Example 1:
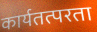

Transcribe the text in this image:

कार्यतत्परता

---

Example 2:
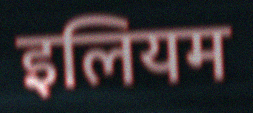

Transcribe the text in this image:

इलियम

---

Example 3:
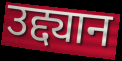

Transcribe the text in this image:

उद्द्यान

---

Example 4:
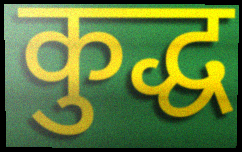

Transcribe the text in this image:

कुद्ध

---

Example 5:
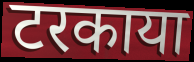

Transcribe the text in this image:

टरकाया